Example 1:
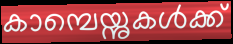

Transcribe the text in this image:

കാമ്പെയ്നുകൾക്ക്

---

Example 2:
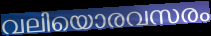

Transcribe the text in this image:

വലിയൊരവസരം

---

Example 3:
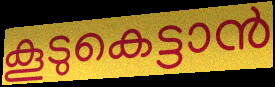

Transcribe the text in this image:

കൂടുകെട്ടാൻ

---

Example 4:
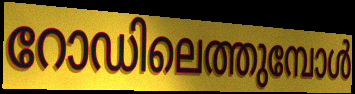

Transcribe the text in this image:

റോഡിലെത്തുമ്പോൾ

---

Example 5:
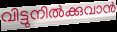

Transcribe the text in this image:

വിട്ടുനിൽക്കുവാൻ